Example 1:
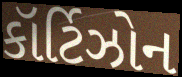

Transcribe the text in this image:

કૉર્ટિઝોન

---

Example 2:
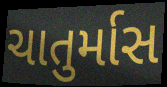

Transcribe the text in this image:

ચાતુર્માસ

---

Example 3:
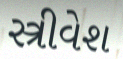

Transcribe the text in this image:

સ્ત્રીવેશ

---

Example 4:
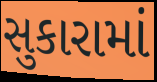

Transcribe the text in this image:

સુકારામાં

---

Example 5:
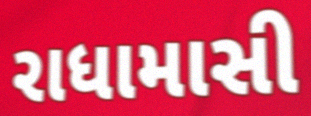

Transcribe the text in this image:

રાધામાસી